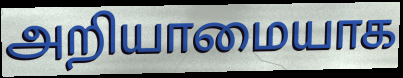
அறியாமையாக